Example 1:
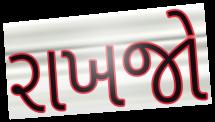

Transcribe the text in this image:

રાખજો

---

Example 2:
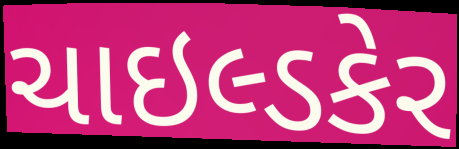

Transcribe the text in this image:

ચાઇલ્ડકેર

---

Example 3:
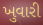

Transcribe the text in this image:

ખુવારી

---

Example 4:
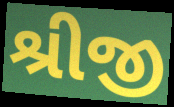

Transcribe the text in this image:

શ્રીજી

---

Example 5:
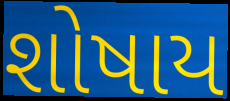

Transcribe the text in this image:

શોષાય